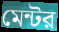
মেন্টর